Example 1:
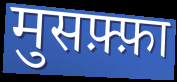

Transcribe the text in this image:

मुसफ़्फ़ा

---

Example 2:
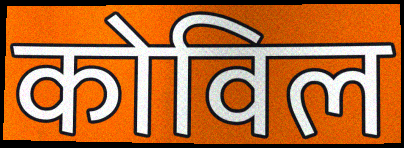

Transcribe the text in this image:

कोविल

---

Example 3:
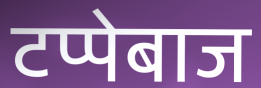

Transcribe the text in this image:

टप्पेबाज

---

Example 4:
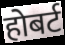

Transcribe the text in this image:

होबर्ट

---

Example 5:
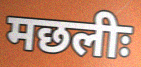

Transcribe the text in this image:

मछलीः